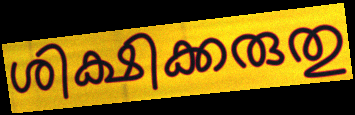
ശിക്ഷിക്കരുതു